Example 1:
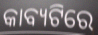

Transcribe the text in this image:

କାବ୍ୟଟିରେ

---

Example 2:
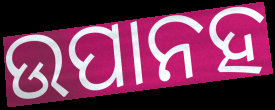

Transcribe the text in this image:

ଉପାନହ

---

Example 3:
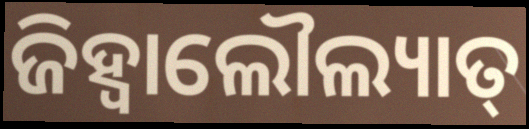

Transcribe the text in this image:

ଜିହ୍ଵାଲୌଲ୍ୟାତ୍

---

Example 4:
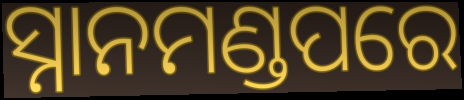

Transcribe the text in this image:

ସ୍ନାନମଣ୍ଡପରେ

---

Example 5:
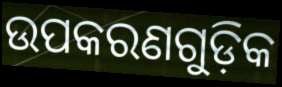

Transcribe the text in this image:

ଉପକରଣଗୁଡ଼ିକ